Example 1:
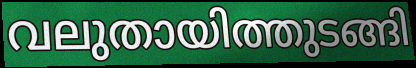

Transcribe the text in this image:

വലുതായിത്തുടങ്ങി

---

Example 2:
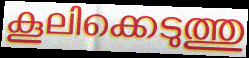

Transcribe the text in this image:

കൂലിക്കെടുത്തു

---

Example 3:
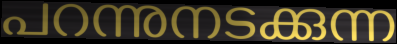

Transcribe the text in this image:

പറന്നുനടക്കുന്ന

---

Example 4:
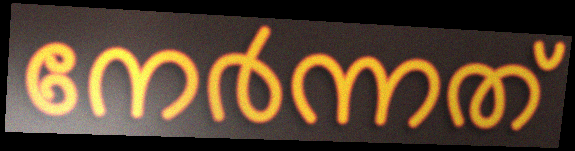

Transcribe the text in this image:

നേർന്നത്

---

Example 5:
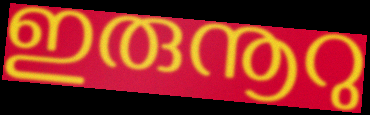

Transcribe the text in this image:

ഇരുനൂറു